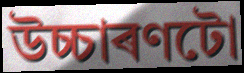
উচ্চাৰণটো